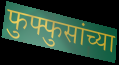
फुफ्फुसांच्या